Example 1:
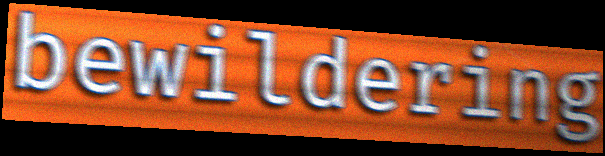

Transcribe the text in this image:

bewildering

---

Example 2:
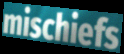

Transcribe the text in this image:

mischiefs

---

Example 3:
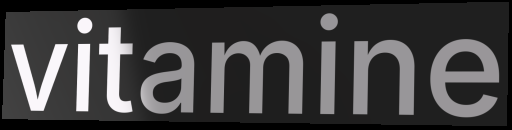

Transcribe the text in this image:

vitamine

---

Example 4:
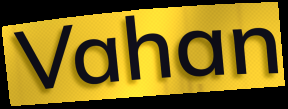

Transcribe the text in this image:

Vahan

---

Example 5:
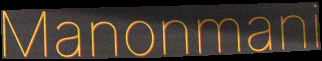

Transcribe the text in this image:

Manonmani